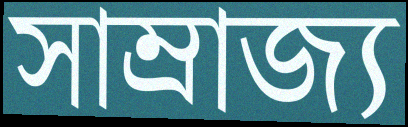
সাম্ৰাজ্য